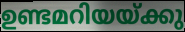
ഉണ്ടമറിയയ്ക്കു